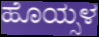
ಹೊಯ್ಸಳ